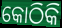
କୋଠିକି